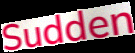
Sudden